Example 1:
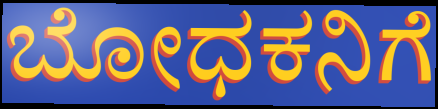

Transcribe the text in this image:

ಬೋಧಕನಿಗೆ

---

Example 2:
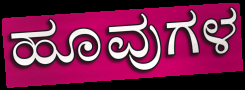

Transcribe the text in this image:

ಹೂವುಗಳ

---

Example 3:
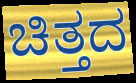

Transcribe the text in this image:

ಚಿತ್ತದ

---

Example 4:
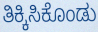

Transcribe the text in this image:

ತಿಕ್ಕಿಸಿಕೊಂಡು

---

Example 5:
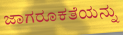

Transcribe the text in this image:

ಜಾಗರೂಕತೆಯನ್ನು